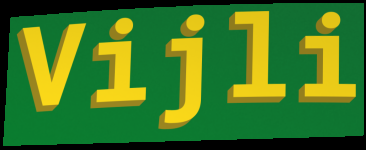
Vijli